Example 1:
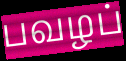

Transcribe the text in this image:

பவழப்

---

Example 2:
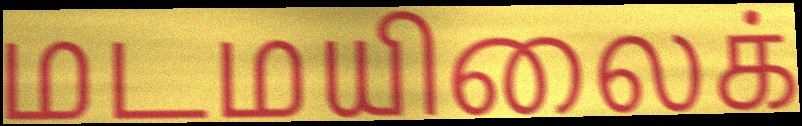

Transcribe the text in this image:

மடமயிலைக்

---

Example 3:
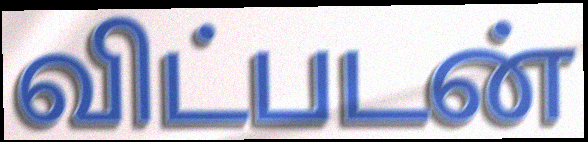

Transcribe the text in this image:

விட்படன்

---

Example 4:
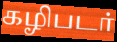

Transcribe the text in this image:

கழிபடர்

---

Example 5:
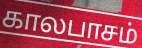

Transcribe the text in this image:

காலபாசம்